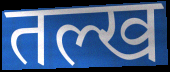
तल्ख